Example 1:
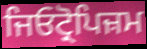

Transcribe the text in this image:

ਜਿਓਟ੍ਰੋਪਿਜ਼ਮ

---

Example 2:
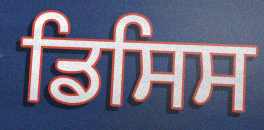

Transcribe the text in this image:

ਡਿਸਿਸ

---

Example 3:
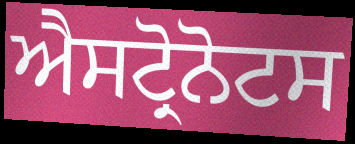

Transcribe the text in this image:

ਐਸਟ੍ਰੋਨੋਟਸ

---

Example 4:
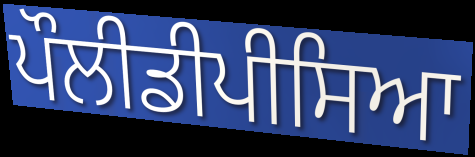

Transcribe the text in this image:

ਪੌਲੀਡੀਪੀਸਿਆ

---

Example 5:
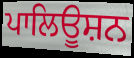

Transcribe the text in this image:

ਪਾਲਿਊਸ਼ਨ